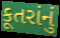
કૂતરાંનું